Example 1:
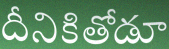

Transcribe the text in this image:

దీనికితోడూ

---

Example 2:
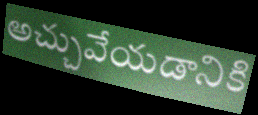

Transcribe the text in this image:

అచ్చువేయడానికి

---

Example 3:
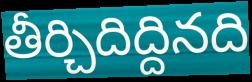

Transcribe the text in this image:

తీర్చిదిద్దినది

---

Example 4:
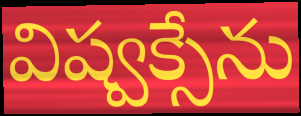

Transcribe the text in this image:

విష్వక్సేను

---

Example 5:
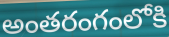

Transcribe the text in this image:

అంతరంగంలోకి